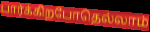
பார்க்கிறபோதெல்லாம்